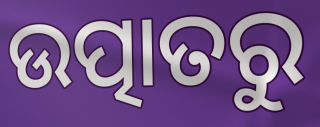
ଉତ୍ପାତରୁ